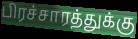
பிரச்சாரத்துக்கு